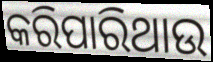
କରିପାରିଥାଉ